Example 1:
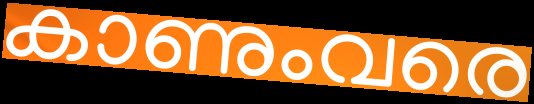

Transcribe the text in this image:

കാണുംവരെ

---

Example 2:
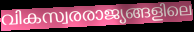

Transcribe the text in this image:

വികസ്വരരാജ്യങ്ങളിലെ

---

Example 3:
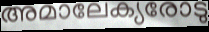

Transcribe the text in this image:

അമാലേക്യരോടു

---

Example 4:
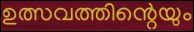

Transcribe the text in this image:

ഉത്സവത്തിന്റെയും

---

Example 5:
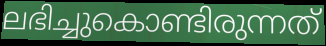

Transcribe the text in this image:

ലഭിച്ചുകൊണ്ടിരുന്നത്